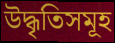
উদ্ধৃতিসমূহ